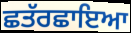
ਛਤੱਰਛਾਇਆ